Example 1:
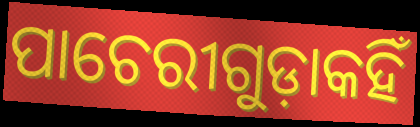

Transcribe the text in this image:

ପାଚେରୀଗୁଡ଼ାକହିଁ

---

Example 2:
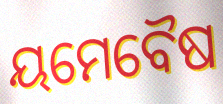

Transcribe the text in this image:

ୟମେବୈଷ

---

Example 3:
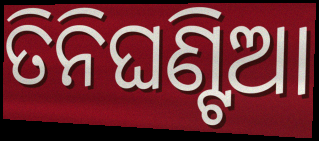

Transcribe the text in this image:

ତିନିଘଣ୍ଟିଆ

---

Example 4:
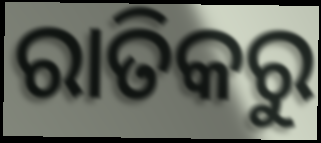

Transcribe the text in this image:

ରାତିକରୁ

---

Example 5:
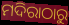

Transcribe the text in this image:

ମଦିରାଠାରୁ